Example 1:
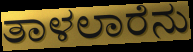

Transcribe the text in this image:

ತಾಳಲಾರೆನು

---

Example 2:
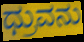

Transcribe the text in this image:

ಧ್ರುವನು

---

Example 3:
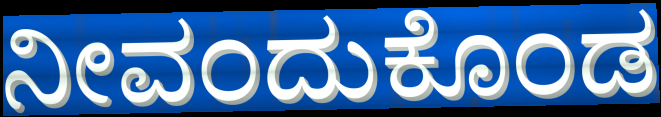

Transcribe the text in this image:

ನೀವಂದುಕೊಂಡ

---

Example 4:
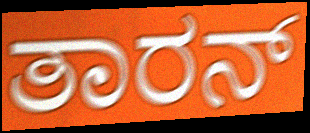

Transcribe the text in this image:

ತಾರನ್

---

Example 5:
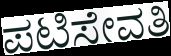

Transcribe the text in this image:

ಪಟಿಸೇವತಿ